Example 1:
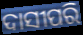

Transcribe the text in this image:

ଦାସୀପରି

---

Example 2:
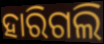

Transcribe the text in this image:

ହାରିଗଲି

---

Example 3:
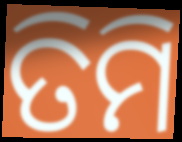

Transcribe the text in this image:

ତିମି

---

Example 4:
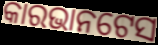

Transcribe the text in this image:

କାରଭାନଟେସ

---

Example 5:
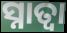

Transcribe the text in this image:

ସ୍ନାତ୍ବା